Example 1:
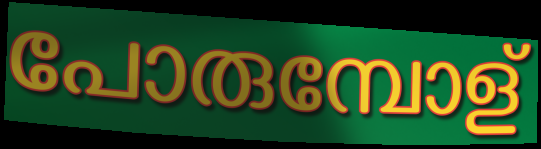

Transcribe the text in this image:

പോരുമ്പോള്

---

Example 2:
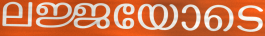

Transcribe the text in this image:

ലജ്ജയോടെ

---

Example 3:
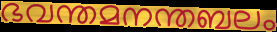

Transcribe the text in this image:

ഭവന്തമനന്തബലം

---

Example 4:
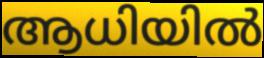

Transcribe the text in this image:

ആധിയിൽ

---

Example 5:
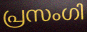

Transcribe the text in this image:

പ്രസംഗി